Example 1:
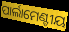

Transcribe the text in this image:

ପାର୍ଲାମେଣ୍ଟୀୟ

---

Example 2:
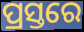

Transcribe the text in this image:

ପ୍ରସ୍ତରେ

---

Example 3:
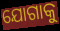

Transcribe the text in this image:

ଯୋଗାକୁ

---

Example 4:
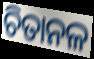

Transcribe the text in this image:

ଚିତାନଳ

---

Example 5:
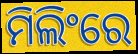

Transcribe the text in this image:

ମିଲିଂରେ